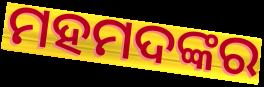
ମହମଦଙ୍କର